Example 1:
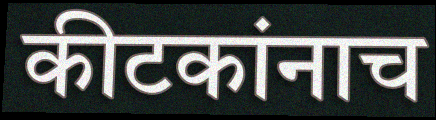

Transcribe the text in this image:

कीटकांनाच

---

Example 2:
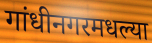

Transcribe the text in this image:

गांधीनगरमधल्या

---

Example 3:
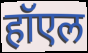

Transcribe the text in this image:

हॉएल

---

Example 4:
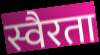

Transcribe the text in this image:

स्वैरता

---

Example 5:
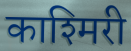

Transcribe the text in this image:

काश्मिरी